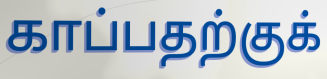
காப்பதற்குக்